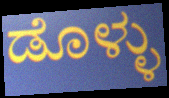
ಡೊಳ್ಳು